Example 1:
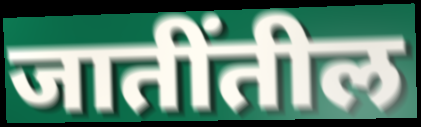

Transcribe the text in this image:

जातींतील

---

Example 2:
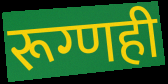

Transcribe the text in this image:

रूग्णही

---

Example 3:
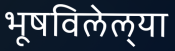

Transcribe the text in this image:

भूषविलेल्या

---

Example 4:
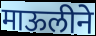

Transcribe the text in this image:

माऊलीने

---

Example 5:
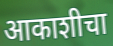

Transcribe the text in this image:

आकाशीचा